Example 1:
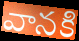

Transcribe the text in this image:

వానకి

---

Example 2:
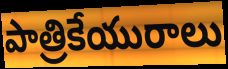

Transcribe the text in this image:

పాత్రికేయురాలు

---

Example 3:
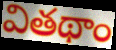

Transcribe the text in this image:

వితథాం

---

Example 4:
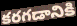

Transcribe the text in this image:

కరగడానికి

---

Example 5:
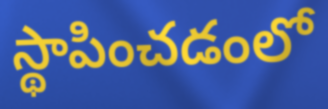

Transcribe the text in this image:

స్థాపించడంలో